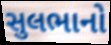
સુલભાનો